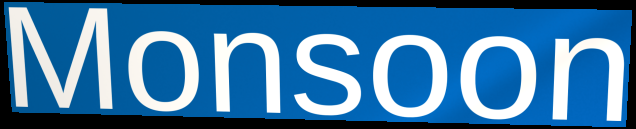
Monsoon